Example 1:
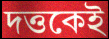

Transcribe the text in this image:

দত্তকেই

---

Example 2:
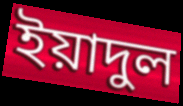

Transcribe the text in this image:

ইয়াদুল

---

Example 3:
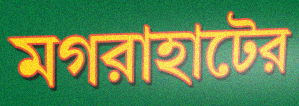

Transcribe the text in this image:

মগরাহাটের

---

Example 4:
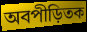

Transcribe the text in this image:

অবপীড়িতক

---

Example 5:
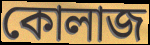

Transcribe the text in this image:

কোলাজ